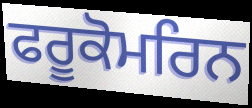
ਫਰੂਕੋਮਰਿਨ